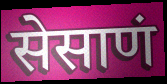
सेसाणं